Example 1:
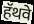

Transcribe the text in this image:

हॅथवे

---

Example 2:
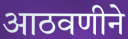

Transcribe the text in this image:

आठवणीने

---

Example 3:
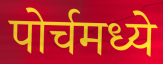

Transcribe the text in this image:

पोर्चमध्ये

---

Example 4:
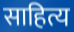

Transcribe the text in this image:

साहित्य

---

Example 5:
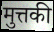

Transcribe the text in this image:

मुत्तकी